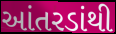
આંતરડાંથી